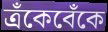
ত্রঁকেবেঁকে